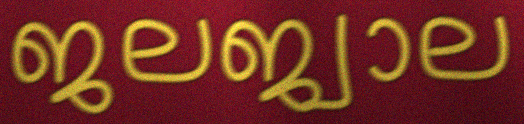
ജലജ്വാല